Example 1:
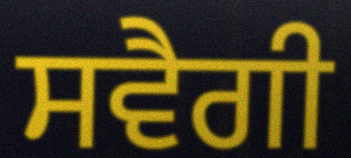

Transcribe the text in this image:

ਸਵੈਗੀ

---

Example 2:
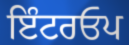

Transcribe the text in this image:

ਇੰਟਰਓਪ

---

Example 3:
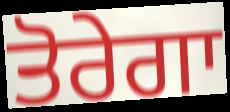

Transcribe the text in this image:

ਤੋਰੇਗਾ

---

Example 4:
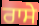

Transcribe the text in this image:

ਰਾਸੇ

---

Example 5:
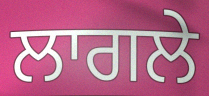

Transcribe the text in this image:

ਲਾਗਲੇ